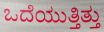
ಒದೆಯುತ್ತಿತ್ತು